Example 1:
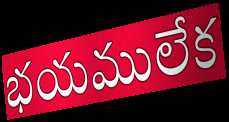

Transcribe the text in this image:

భయములేక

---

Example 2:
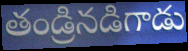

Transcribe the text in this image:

తండ్రినడిగాడు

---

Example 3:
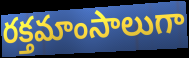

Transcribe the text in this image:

రక్తమాంసాలుగా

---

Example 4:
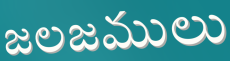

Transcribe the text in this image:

జలజములు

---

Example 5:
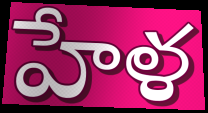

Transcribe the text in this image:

హేళ